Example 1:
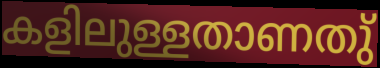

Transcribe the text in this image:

കളിലുള്ളതാണതു്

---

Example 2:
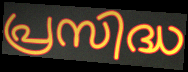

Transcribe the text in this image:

പ്രസിദ്ധ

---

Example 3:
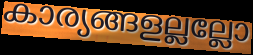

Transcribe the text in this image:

കാര്യങ്ങളല്ലല്ലോ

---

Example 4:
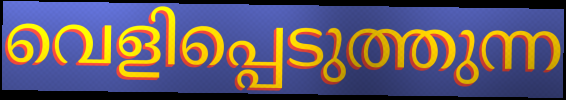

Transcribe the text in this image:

വെളിപ്പെടുത്തുന്ന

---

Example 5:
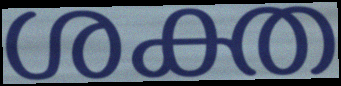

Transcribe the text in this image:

ശക്ത